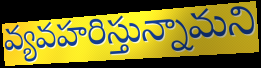
వ్యవహరిస్తున్నామని